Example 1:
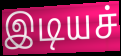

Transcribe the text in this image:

இடியச்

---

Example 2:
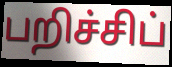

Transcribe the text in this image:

பறிச்சிப்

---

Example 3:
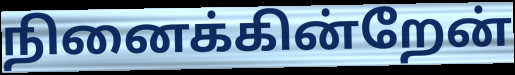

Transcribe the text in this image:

நினைக்கின்றேன்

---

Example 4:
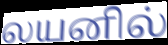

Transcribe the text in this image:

லயனில்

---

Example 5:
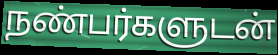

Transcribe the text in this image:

நண்பர்களுடன்